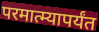
परमात्म्यापर्यंत